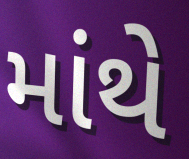
માંથે